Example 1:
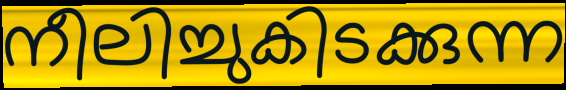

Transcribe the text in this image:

നീലിച്ചുകിടക്കുന്ന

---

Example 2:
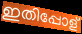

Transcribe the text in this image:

ഇതിപ്പോള്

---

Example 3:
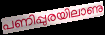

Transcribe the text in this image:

പണിപ്പുരയിലാണു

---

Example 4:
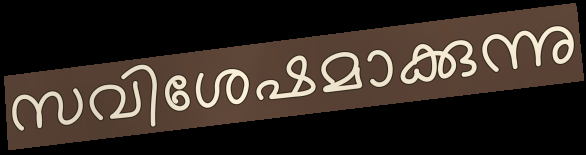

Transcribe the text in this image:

സവിശേഷമാക്കുന്നു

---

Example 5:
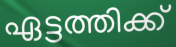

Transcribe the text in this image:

ഏട്ടത്തിക്ക്